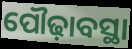
ପୌଢ଼ାବସ୍ଥା